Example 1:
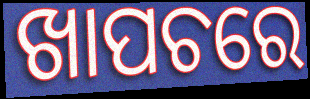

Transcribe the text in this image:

ଖାପଚରେ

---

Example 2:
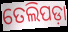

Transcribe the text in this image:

ତେଲିପଡ଼ା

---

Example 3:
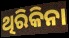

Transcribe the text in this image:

ଥିରିକିନା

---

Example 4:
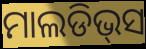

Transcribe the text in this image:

ମାଲଡିଭ୍‌ସ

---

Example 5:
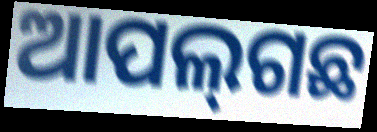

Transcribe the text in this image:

ଆପଲ୍‍ଗଛ